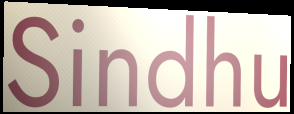
Sindhu